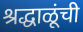
श्रद्धाळूंची